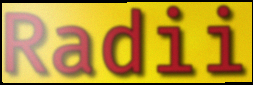
Radii